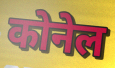
कोनेल